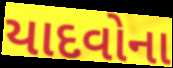
યાદવોના